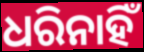
ଧରିନାହିଁ